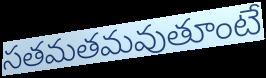
సతమతమవుతూంటే